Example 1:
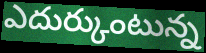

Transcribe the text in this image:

ఎదుర్కుంటున్న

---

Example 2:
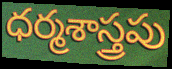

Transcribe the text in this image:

ధర్మశాస్త్రపు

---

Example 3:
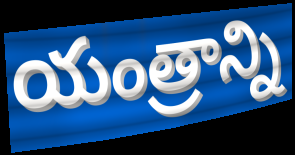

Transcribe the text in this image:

యంత్రాన్ని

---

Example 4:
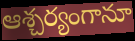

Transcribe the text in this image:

ఆశ్చర్యంగానూ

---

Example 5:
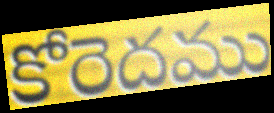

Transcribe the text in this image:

కోరెదము